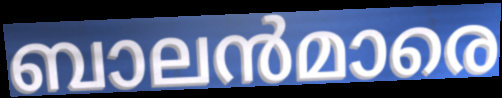
ബാലൻമാരെ